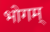
भोगम्